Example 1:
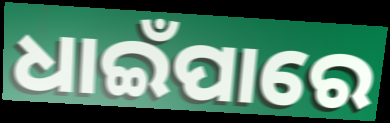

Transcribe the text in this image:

ଧାଇଁପାରେ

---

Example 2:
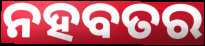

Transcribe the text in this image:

ନହବତର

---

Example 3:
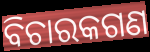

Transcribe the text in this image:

ବିଚାରକଗଣ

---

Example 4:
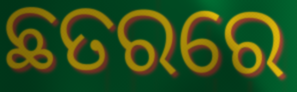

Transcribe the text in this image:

ଛତରରେ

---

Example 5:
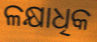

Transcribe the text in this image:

ଳକ୍ଷାଧିକ